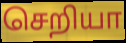
செறியா